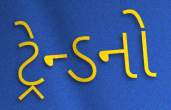
ટ્રેન્ડનો